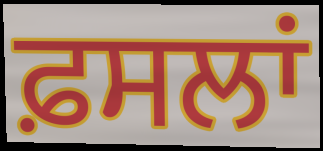
ਫ਼ਸਲਾਂ